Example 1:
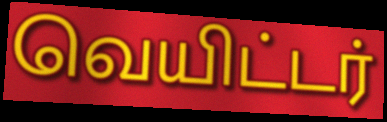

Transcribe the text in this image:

வெயிட்டர்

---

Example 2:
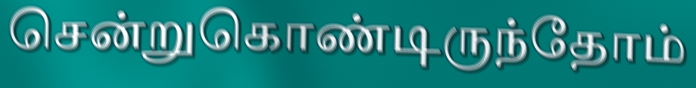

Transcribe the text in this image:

சென்றுகொண்டிருந்தோம்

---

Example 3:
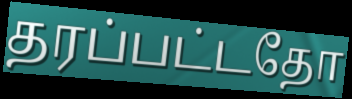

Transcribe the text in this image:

தரப்பட்டதோ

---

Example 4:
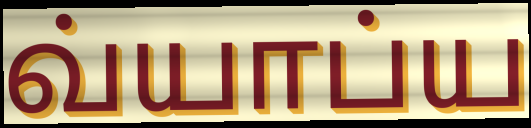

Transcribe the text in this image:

வ்யாப்ய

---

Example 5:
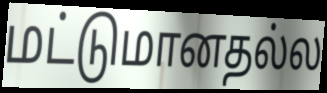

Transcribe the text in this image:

மட்டுமானதல்ல